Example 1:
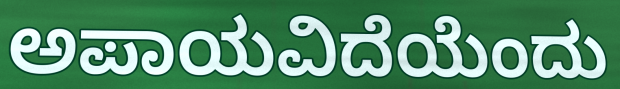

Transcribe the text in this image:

ಅಪಾಯವಿದೆಯೆಂದು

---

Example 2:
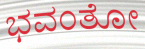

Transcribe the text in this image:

ಭವಂತೋ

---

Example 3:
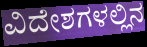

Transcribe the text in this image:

ವಿದೇಶಗಳಲ್ಲಿನ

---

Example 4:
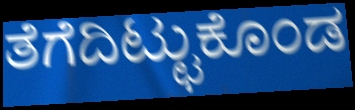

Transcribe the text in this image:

ತೆಗೆದಿಟ್ಟುಕೊಂಡ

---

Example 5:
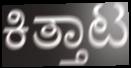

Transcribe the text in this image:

ಕಿತ್ತಾಟ